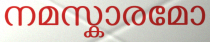
നമസ്കാരമോ